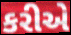
કરીએ